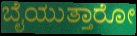
ಬೈಯುತ್ತಾರೋ